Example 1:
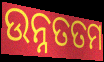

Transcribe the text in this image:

ଉନ୍ନତତମ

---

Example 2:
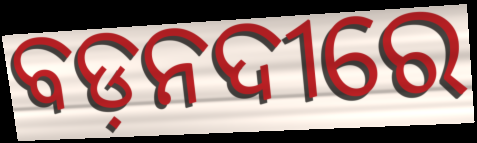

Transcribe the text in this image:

ବଡ଼ନଦୀରେ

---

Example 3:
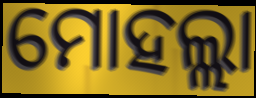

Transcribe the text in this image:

ମୋହଲ୍ଲା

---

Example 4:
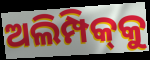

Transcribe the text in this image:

ଅଲିମ୍ପିକ୍‌କୁ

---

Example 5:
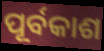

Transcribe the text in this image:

ପୂର୍ବକାଶ